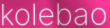
kolebao